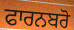
ਫਾਰਨਬਰੋ